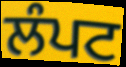
ਲੰਪਟ